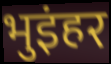
भुइंहर